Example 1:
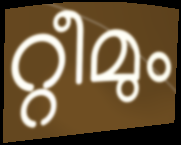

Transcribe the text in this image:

റ്റീമും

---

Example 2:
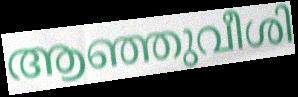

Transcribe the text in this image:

ആഞ്ഞുവീശി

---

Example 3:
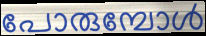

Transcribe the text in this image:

പോരുമ്പോൾ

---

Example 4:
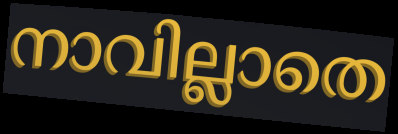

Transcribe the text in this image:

നാവില്ലാതെ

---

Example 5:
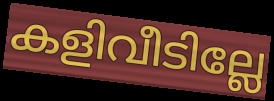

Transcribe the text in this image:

കളിവീടില്ലേ